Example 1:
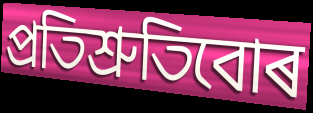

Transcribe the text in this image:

প্ৰতিশ্ৰুতিবোৰ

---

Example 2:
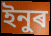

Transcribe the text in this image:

ইনুৰ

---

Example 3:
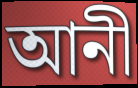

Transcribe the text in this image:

আনী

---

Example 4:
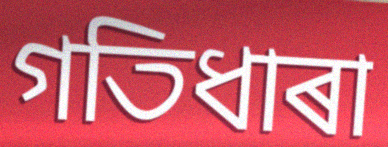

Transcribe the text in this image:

গতিধাৰা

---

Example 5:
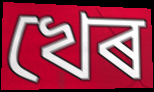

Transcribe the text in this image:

খেৰ